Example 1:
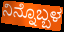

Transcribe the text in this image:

ನಿನ್ನೊಬ್ಬಳ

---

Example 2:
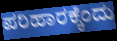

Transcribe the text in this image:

ಪರಿಹಾರಕ್ಕೆಂದು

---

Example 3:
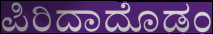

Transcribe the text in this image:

ಪಿರಿದಾದೊಡಂ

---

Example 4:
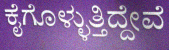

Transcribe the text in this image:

ಕೈಗೊಳ್ಳುತ್ತಿದ್ದೇವೆ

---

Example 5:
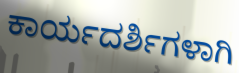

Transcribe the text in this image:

ಕಾರ್ಯದರ್ಶಿಗಳಾಗಿ